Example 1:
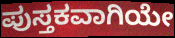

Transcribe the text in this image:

ಪುಸ್ತಕವಾಗಿಯೇ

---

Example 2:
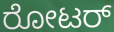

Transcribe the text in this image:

ರೋಟರ್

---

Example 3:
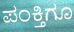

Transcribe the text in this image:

ಪಂಕ್ತಿಗೂ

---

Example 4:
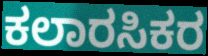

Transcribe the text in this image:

ಕಲಾರಸಿಕರ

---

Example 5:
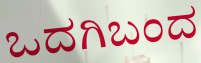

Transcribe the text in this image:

ಒದಗಿಬಂದ